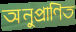
অনুপ্রাণিত